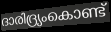
ദാരിദ്ര്യംകൊണ്ട്